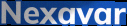
Nexavar